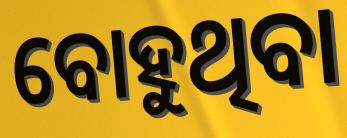
ବୋହୁଥିବା